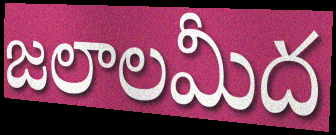
జలాలమీద